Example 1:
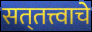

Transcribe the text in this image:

सत्‌तत्त्वाचे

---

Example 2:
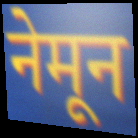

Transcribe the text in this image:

नेमून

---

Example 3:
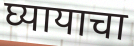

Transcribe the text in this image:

घ्यायाचा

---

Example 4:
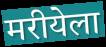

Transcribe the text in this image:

मरीयेला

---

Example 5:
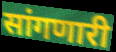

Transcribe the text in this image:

सांगणारी